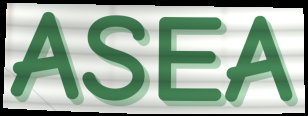
ASEA